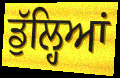
ਡੁੱਲ੍ਹਿਆਂ